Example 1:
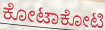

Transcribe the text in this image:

ಕೋಟಾಕೋಟಿ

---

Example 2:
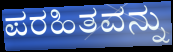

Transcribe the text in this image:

ಪರಹಿತವನ್ನು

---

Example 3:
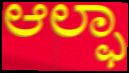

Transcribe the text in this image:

ಆಲ್ಫಾ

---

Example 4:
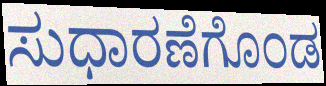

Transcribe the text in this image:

ಸುಧಾರಣೆಗೊಂಡ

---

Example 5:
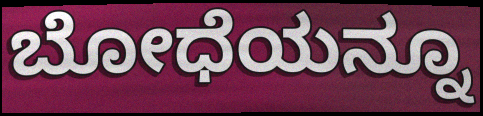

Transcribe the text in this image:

ಬೋಧೆಯನ್ನೂ